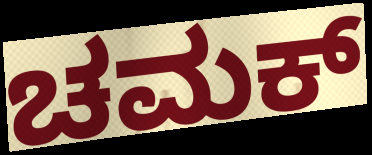
ಚಮಕ್